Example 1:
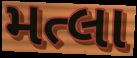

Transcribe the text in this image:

મત્લા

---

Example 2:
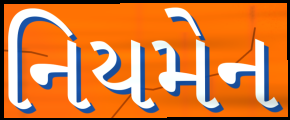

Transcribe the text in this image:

નિયમેન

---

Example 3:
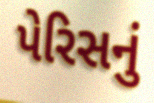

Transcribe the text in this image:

પેરિસનું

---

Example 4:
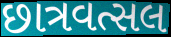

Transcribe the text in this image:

છાત્રવત્સલ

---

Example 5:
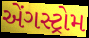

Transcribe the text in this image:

એંગસ્ટ્રોમ